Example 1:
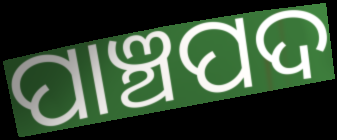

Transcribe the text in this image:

ପାଞ୍ଚପଦ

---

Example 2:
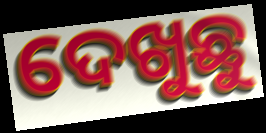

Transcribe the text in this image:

ଦେଖୁଛୁ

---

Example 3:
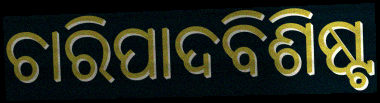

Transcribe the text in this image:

ଚାରିପାଦବିଶିଷ୍ଟ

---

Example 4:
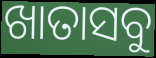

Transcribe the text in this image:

ଖାତାସବୁ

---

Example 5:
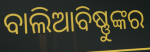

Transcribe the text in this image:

ବାଲିଆବିଷ୍ଣୁଙ୍କର